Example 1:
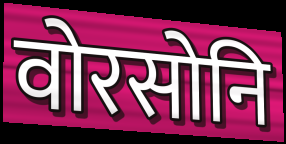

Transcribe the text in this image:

वोरसोनि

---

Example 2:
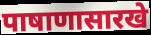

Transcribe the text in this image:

पाषाणासारखे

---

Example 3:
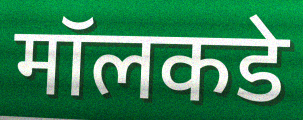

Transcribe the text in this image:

मॉलकडे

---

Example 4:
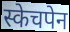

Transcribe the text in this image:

स्केचपेन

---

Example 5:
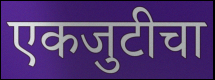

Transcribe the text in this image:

एकजुटीचा